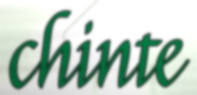
chinte